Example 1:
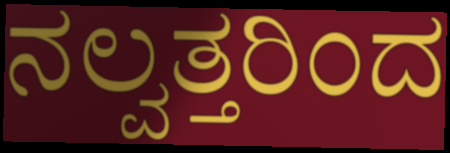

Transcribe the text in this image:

ನಲ್ವತ್ತರಿಂದ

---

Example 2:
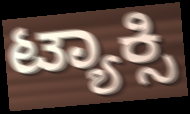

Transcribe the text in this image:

ಟ್ಯಾಕ್ಸಿ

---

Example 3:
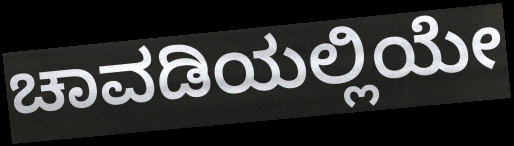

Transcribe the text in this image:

ಚಾವಡಿಯಲ್ಲಿಯೇ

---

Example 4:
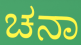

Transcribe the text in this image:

ಚನಾ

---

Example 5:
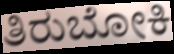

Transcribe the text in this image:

ತಿರುಬೋಕಿ